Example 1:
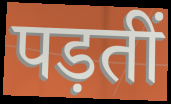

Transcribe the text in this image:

पड़तीं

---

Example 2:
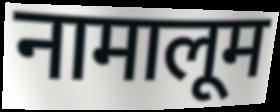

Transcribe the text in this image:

नामालूम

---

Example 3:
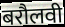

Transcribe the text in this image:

बरौलवी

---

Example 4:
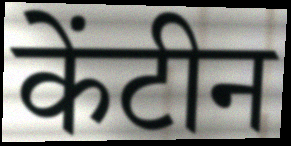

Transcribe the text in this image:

केंटीन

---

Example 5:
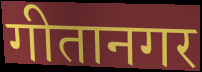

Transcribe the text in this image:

गीतानगर